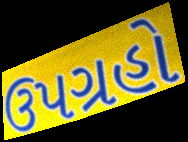
ઉપગ્રહો